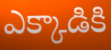
ఎక్కాడికి